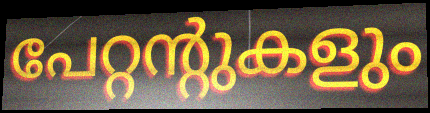
പേറ്റന്റുകളും